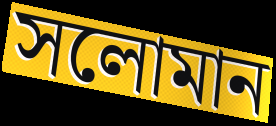
সলোমান